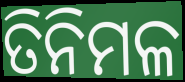
ତିନିମଳ